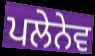
ਪਲੇਨੇਵ